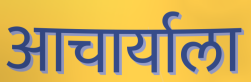
आचार्याला